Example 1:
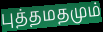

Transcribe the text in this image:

புத்தமதமும்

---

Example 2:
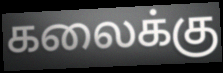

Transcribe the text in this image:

கலைக்கு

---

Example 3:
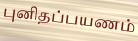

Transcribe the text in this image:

புனிதப்பயணம்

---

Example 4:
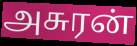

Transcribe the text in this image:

அசுரன்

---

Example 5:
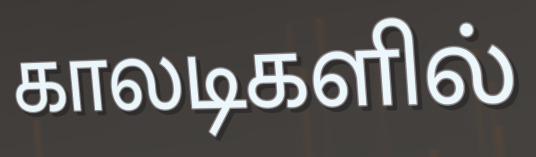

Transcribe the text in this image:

காலடிகளில்